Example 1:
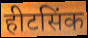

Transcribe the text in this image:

हीटसिंक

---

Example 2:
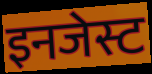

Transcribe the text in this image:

इनजेस्ट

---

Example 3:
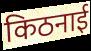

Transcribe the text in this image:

किठनाई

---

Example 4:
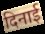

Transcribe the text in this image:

दिनाई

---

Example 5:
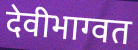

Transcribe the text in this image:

देवीभाग्वत